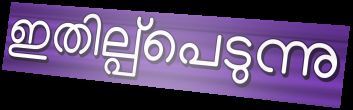
ഇതില്പ്പെടുന്നു